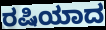
ರಷಿಯಾದ